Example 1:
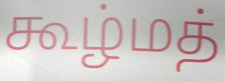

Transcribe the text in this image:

கூழ்மத்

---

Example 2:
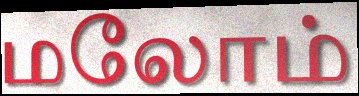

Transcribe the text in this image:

மலோம்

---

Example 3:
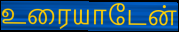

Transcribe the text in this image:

உரையாடேன்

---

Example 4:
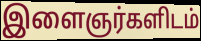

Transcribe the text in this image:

இளைஞர்களிடம்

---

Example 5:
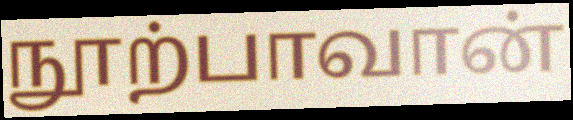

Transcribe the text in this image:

நூற்பாவான்